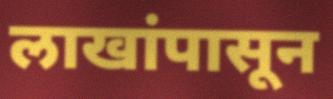
लाखांपासून